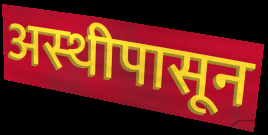
अस्थीपासून